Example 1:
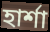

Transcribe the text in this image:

হার্শা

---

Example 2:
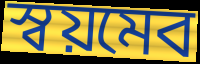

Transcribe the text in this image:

স্বয়মেব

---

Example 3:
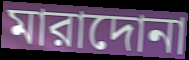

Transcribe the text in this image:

মারাদোনা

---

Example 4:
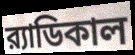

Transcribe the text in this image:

র‍্যাডিকাল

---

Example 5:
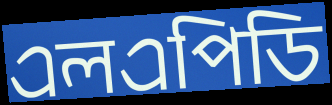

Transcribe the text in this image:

এলএপিডি